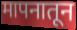
मापनातून